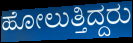
ಹೋಲುತ್ತಿದ್ದರು